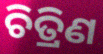
ଚିତ୍ରିଣ